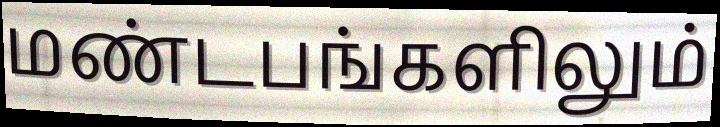
மண்டபங்களிலும்